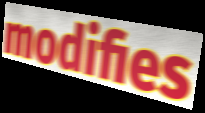
modifies